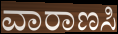
ವಾರಾಣಸಿ